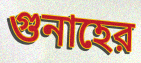
গুনাহের